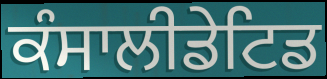
ਕੰਸਾਲੀਡੇਟਿਡ